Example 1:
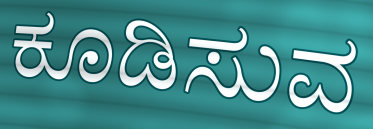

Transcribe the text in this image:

ಕೂಡಿಸುವ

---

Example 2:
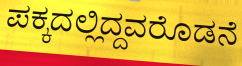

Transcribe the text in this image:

ಪಕ್ಕದಲ್ಲಿದ್ದವರೊಡನೆ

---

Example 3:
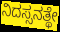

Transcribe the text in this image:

ನಿದಸ್ಸನತ್ಥೇ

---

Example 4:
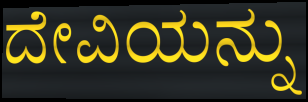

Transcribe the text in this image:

ದೇವಿಯನ್ನು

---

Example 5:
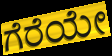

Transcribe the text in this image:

ಗೆರೆಯೇ